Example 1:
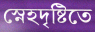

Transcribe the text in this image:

স্নেহদৃষ্টিতে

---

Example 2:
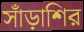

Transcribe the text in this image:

সাঁড়াশির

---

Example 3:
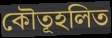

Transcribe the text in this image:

কৌতূহলিত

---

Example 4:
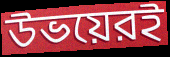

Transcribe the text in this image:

উভয়েরই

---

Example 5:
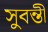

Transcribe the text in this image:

সুবন্তী